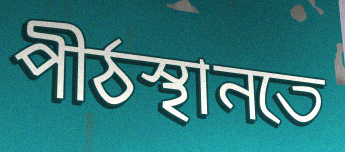
পীঠস্থানতে